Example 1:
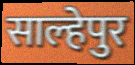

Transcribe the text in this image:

साल्हेपुर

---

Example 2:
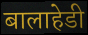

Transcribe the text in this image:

बालाहेडी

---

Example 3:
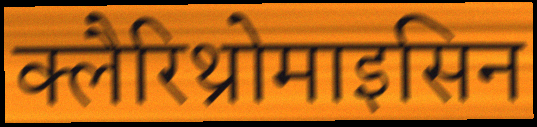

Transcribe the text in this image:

क्लैरिथ्रोमाइसिन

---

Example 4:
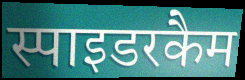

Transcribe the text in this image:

स्पाइडरकैम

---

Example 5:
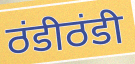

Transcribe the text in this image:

ठंडीठंडी